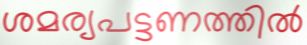
ശമര്യപട്ടണത്തിൽ